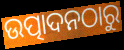
ଉତ୍ପାଦନଠାରୁ